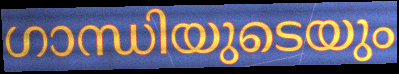
ഗാന്ധിയുടെയും